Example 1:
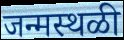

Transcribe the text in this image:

जन्मस्थळी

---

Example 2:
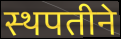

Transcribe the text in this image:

स्थपतीने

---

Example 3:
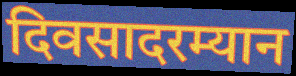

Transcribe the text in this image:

दिवसादरम्यान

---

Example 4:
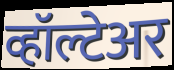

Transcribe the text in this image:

व्हॉल्टेअर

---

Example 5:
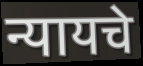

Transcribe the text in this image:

न्यायचे